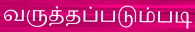
வருத்தப்படும்படி